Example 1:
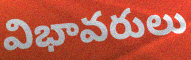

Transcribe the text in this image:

విభావరులు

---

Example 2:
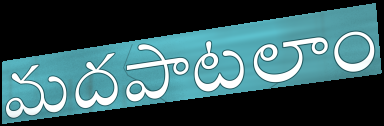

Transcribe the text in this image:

మదపాటలాం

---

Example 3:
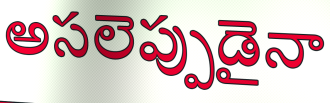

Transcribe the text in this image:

అసలెప్పుడైనా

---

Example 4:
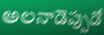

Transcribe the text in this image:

అలనాడెప్పుడో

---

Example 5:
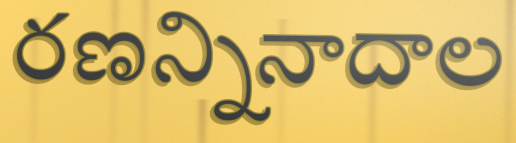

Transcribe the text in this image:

రణన్నినాదాల